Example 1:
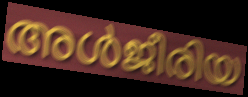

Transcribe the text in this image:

അൾജീരിയ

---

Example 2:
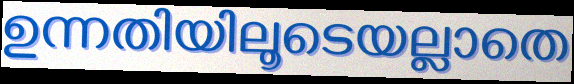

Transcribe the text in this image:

ഉന്നതിയിലൂടെയല്ലാതെ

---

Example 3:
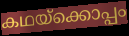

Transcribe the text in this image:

കഥയ്ക്കൊപ്പം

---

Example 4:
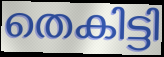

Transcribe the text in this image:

തെകിട്ടി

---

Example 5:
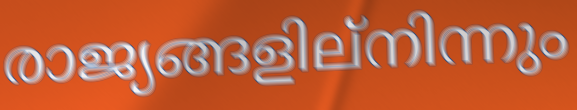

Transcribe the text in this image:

രാജ്യങ്ങളില്നിന്നും